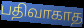
பதிவாகாத